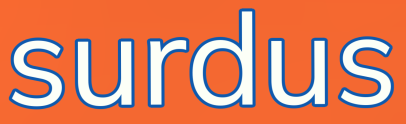
surdus